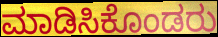
ಮಾಡಿಸಿಕೊಂಡರು